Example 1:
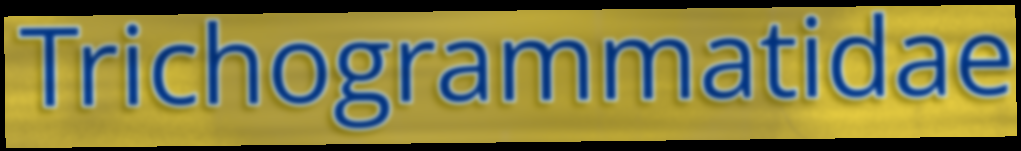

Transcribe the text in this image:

Trichogrammatidae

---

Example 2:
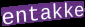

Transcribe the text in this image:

entakke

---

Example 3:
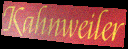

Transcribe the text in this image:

Kahnweiler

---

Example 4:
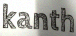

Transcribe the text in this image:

kanth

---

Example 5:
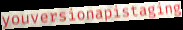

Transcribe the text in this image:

youversionapistaging